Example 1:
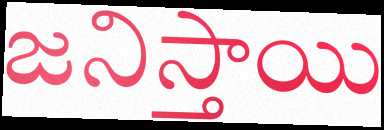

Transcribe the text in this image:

జనిస్తాయి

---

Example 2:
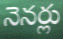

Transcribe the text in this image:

నెనర్లు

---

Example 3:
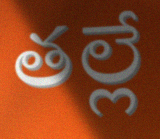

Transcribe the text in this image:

తల్లే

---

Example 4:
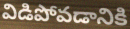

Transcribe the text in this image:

విడిపోవడానికి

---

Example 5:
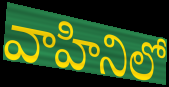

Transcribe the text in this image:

వాహినిలో